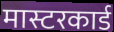
मास्टरकार्ड